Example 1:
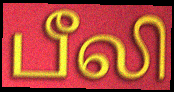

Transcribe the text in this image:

பீலி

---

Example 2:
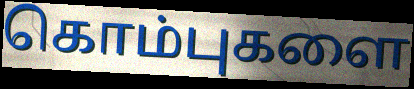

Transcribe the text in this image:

கொம்புகளை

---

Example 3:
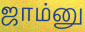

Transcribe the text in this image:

ஜாம்னு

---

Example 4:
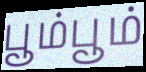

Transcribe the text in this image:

பூம்பூம்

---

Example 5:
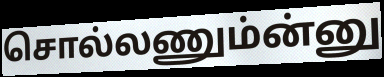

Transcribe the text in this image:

சொல்லணும்ன்னு